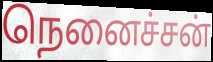
நெனைச்சன்